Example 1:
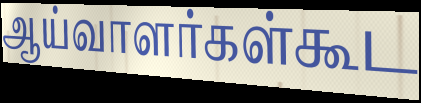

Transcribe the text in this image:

ஆய்வாளர்கள்கூட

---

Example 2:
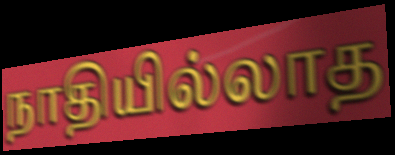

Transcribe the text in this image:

நாதியில்லாத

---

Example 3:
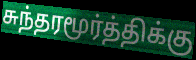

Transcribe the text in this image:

சுந்தரமூர்த்திக்கு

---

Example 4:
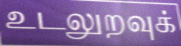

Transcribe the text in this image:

உடலுறவுக்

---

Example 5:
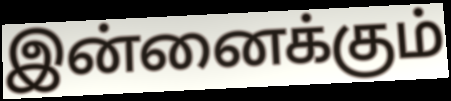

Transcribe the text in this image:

இன்னைக்கும்